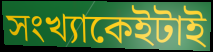
সংখ্যাকেইটাই